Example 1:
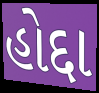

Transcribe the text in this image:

હોદ્દા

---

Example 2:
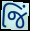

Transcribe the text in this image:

જિં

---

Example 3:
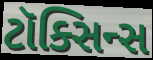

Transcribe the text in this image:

ટૉક્સિન્સ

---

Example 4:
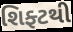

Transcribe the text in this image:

શિફ્ટથી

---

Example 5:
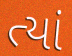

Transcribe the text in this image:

ત્યાં